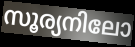
സൂര്യനിലോ